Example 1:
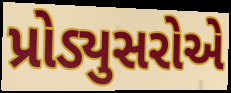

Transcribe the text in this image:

પ્રોડ્યુસરોએ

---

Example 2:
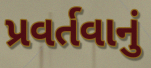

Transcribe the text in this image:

પ્રવર્તવાનું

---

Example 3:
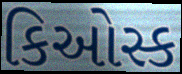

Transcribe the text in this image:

કિઓસ્ક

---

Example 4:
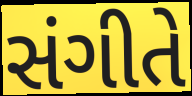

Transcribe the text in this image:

સંગીતે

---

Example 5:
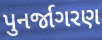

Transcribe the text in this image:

પુનર્જાગરણ